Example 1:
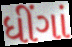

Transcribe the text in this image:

ધીંગાં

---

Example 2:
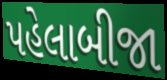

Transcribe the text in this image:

પહેલાબીજા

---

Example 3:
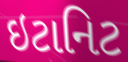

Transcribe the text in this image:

ઇટાનિટ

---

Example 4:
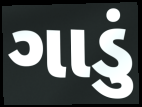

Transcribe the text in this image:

ગાડું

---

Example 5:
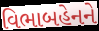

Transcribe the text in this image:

વિભાબહેનને